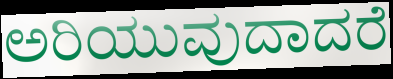
ಅರಿಯುವುದಾದರೆ